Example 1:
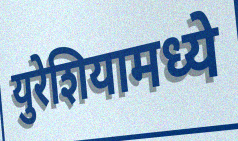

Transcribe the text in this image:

युरेशियामध्ये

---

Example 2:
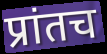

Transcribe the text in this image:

प्रांतच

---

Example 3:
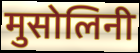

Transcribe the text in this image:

मुसोलिनी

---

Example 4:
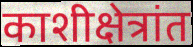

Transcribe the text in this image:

काशीक्षेत्रांत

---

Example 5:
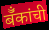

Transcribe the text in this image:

बॅँकांची